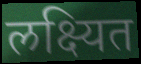
लक्ष्यित